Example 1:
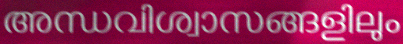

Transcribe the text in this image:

അന്ധവിശ്വാസങ്ങളിലും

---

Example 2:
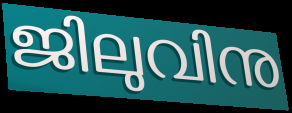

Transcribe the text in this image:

ജിലുവിനു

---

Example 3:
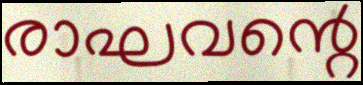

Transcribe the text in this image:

രാഘവന്റെ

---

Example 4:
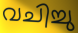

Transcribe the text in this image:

വചിച്ചു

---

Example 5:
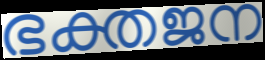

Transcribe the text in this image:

ഭക്തജന